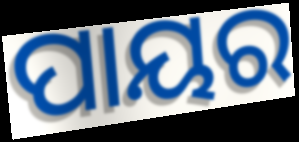
ପାୟର